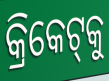
କ୍ରିକେଟ୍‌କୁ